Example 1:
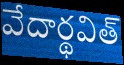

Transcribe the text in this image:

వేదార్థవిత్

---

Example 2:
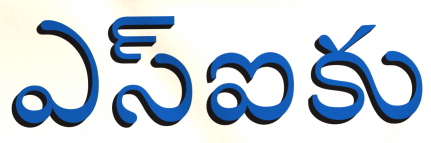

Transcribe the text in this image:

ఎస్ఐకు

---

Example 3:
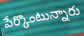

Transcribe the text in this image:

పేర్కొంటున్నారు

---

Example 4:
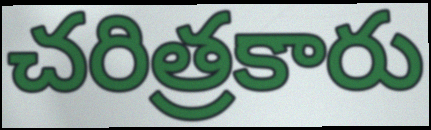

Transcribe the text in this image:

చరిత్రకారు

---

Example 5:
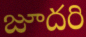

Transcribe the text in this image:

జూదరి